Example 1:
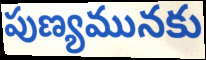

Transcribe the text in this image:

పుణ్యమునకు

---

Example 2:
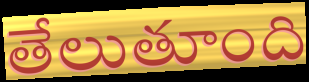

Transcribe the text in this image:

తేలుతూంది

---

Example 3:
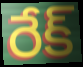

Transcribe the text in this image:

రేక్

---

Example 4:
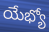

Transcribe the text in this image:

యేభ్యో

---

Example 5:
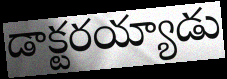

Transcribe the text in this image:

డాక్టరయ్యాడు